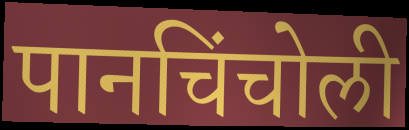
पानचिंचोली